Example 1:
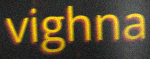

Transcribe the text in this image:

vighna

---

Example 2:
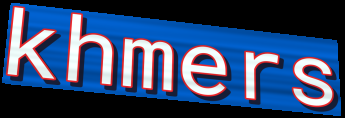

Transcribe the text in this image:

khmers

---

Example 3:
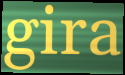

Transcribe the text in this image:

gira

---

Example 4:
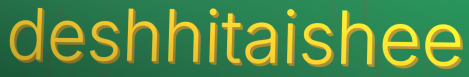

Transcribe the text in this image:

deshhitaishee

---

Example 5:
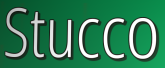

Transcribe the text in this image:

Stucco